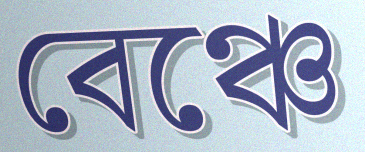
বেঞ্চে